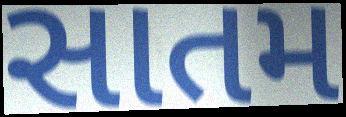
સાતમ